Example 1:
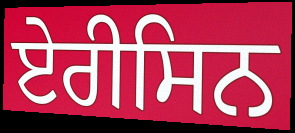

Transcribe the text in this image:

ਏਰੀਸਿਨ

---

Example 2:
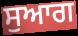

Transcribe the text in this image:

ਸੁਆਗ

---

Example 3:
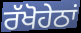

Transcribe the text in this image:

ਰੱਖੋਹੇਠਾਂ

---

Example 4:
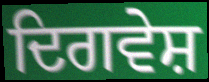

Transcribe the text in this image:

ਦਿਗਵੇਸ਼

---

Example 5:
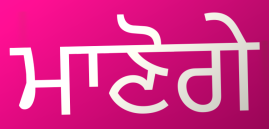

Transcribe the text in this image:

ਮਾਣੋਗੇ